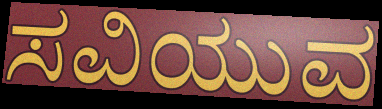
ಸವಿಯುವ